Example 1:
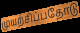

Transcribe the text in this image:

முயற்சிப்பதோடு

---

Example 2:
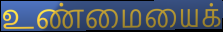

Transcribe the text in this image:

உண்மையைக்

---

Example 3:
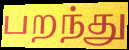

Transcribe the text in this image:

பறந்து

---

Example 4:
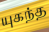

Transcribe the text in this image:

யுகந்த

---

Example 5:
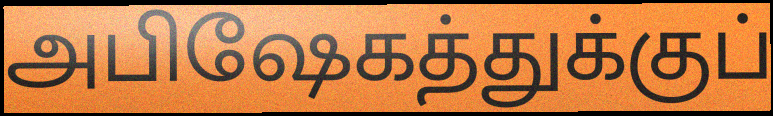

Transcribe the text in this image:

அபிஷேகத்துக்குப்